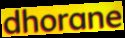
dhorane